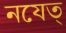
নযেত্